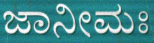
ಜಾನೀಮಃ